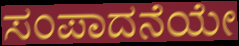
ಸಂಪಾದನೆಯೇ